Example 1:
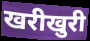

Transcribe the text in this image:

खरीखुरी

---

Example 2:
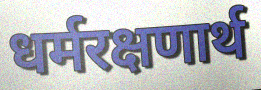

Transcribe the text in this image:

धर्मरक्षणार्थ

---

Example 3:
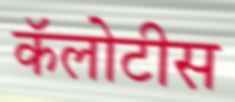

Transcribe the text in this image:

कॅलोटीस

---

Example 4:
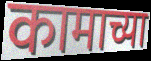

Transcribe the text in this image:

कामाच्या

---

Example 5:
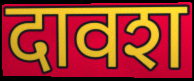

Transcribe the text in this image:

दावश